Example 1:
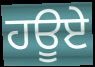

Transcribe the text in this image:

ਹਊਏ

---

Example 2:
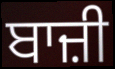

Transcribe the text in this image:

ਬਾਜ਼ੀ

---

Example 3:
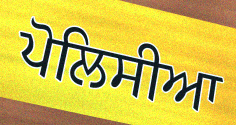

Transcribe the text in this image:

ਪੋਲਿਸੀਆ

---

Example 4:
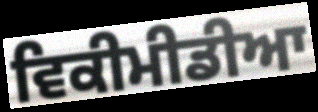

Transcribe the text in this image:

ਵਿਕੀਮੀਡੀਆ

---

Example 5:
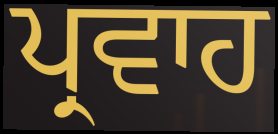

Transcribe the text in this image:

ਪ੍ਰਵਾਹ